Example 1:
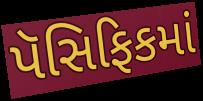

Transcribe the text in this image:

પૅસિફિકમાં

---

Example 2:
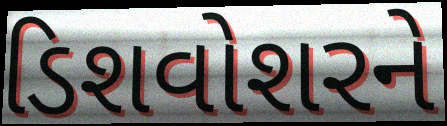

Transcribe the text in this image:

ડિશવોશરને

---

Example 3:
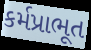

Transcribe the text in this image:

કર્મપ્રાભૂત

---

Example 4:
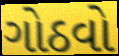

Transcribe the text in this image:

ગોઠવો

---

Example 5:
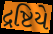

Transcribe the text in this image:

દ્રષ્ટિયે